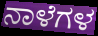
ನಾಳೆಗಳ